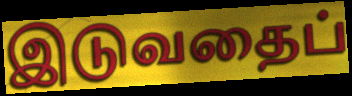
இடுவதைப்